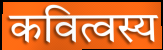
कवित्वस्य